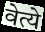
वेत्ये